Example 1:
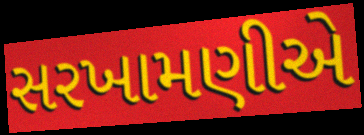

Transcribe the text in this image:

સરખામણીએ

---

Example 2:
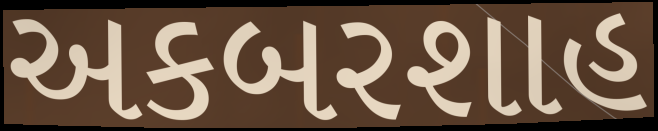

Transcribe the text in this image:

અકબરશાહ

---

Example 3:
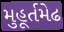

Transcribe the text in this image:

મુહૂર્તમેઢ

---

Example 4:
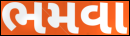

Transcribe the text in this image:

ભમવા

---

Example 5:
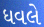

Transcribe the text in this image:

ધવલે